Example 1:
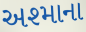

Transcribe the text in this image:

અશ્માના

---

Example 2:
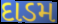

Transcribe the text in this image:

દાડમ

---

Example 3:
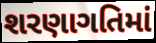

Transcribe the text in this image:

શરણાગતિમાં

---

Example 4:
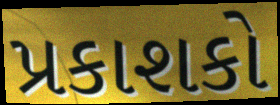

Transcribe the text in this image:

પ્રકાશકો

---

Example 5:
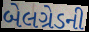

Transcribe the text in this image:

બેલગ્રેડની